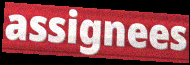
assignees